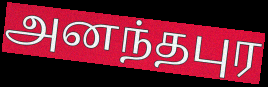
அனந்தபுர